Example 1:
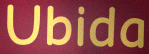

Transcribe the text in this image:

Ubida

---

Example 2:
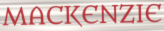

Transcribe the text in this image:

MACKENZIE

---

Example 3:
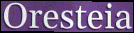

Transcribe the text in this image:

Oresteia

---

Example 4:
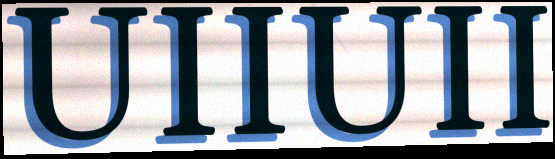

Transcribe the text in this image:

UIIUII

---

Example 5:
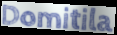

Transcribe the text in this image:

Domitila